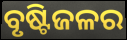
ବୃଷ୍ଟିଜଳର